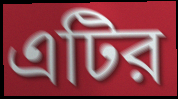
এটির